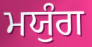
ਮਯੁੰਗ